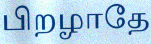
பிறழாதே